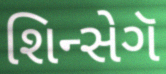
શિન્સેગૅ